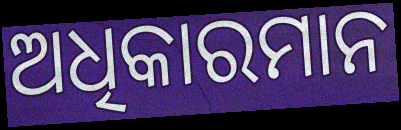
ଅଧିକାରମାନ